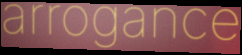
arrogance